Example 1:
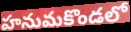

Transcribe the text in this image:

హనుమకొండలో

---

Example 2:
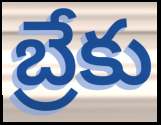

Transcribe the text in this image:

బ్రేకు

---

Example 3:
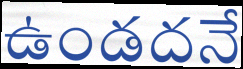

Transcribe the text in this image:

ఉండదనే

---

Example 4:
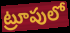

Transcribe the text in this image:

ట్రూపులో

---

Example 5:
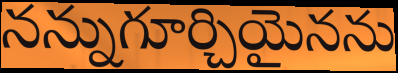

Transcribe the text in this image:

నన్నుగూర్చియైనను